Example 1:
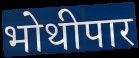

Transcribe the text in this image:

भोथीपार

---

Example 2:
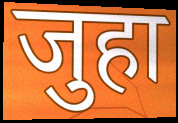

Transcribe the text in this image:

जुहा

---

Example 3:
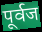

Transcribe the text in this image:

पूर्वज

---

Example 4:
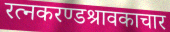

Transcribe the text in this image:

रत्नकरण्डश्रावकाचार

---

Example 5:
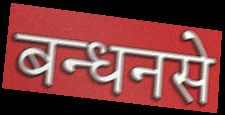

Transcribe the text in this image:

बन्धनसे